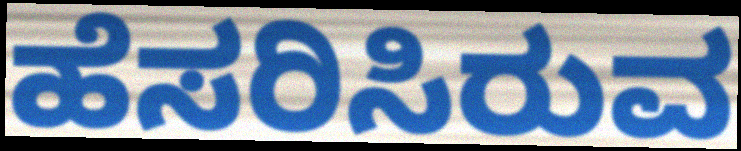
ಹೆಸರಿಸಿರುವ